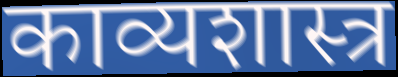
काव्यशास्त्र